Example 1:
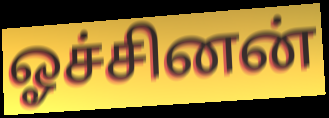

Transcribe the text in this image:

ஓச்சினன்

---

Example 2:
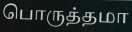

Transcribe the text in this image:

பொருத்தமா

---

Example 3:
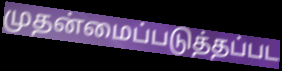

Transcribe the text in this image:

முதன்மைப்படுத்தப்பட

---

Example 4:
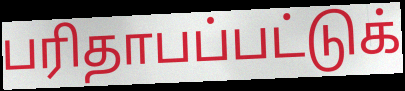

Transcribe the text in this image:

பரிதாபப்பட்டுக்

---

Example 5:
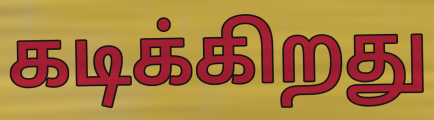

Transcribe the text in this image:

கடிக்கிறது